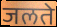
जलते